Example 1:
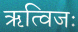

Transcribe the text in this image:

ऋत्विजः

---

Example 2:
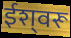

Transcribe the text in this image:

ईश्वरू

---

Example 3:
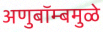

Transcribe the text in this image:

अणुबॉम्बमुळे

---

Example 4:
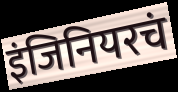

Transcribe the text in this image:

इंजिनियरचं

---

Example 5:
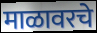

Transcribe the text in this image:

माळावरचे